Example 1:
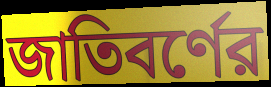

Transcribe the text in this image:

জাতিবর্ণের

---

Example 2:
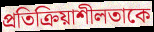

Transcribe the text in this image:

প্রতিক্রিয়াশীলতাকে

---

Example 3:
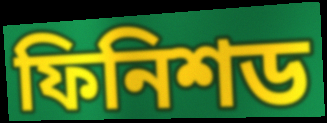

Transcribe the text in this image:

ফিনিশড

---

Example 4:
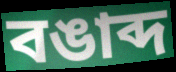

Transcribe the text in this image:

বঙাব্দ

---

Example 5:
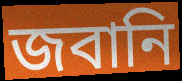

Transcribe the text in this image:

জবানি